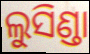
ଲୁସିଣ୍ଡା